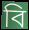
বি